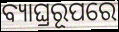
ବ୍ୟାଘ୍ରରୂପରେ